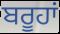
ਬਰੂਹਾਂ